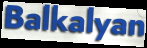
Balkalyan